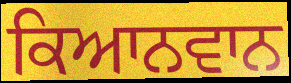
ਕਿਆਨਵਾਨ